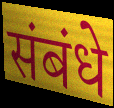
संबंधे